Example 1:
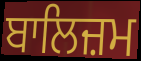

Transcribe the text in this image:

ਬਾਲਿਜ਼ਮ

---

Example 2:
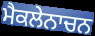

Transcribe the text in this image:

ਮੈਕਲੇਨਾਚਨ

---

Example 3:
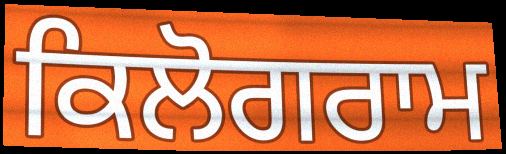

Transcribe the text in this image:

ਕਿਲੋਗਰਾਮ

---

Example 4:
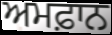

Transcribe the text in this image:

ਅਮਫ਼ਾਨ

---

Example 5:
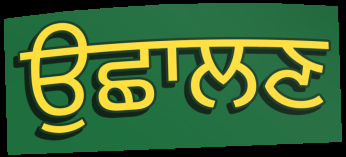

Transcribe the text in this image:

ਉਛਾਲਣ